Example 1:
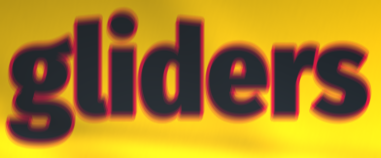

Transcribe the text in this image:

gliders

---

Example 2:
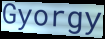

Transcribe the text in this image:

Gyorgy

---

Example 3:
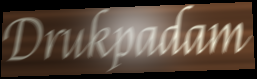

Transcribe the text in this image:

Drukpadam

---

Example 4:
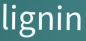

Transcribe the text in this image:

lignin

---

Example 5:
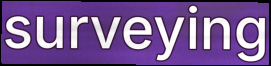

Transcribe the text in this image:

surveying